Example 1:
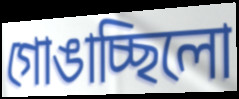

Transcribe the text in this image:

গোঙাচ্ছিলো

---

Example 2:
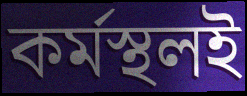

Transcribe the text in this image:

কর্মস্থলই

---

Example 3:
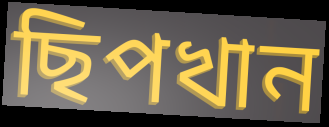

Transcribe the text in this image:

ছিপখান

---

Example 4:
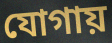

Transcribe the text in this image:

যোগায়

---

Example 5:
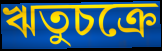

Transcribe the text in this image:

ঋতুচক্রে